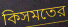
কিসমতের